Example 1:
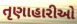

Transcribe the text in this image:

તૃણાહારીઓ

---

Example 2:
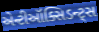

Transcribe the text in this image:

એન્ટીઑક્સિડન્ટ્સ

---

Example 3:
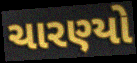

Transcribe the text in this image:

ચારણ્યો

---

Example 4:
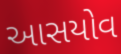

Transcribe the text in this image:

આસયોવ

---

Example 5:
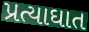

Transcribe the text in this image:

પ્રત્યાઘાત